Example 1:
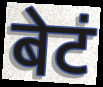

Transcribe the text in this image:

बेटं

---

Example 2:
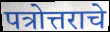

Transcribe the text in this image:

पत्रोत्तराचे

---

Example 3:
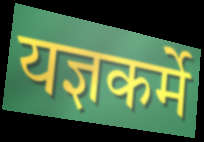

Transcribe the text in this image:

यज्ञकर्मे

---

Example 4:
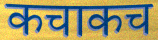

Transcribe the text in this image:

कचाकच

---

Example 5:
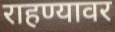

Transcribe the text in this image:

राहण्यावर